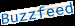
Buzzfeed